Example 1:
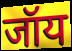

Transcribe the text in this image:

जॉय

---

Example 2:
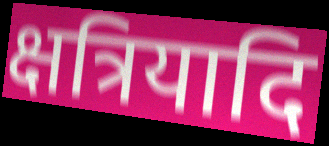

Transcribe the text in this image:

क्षत्रियादि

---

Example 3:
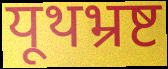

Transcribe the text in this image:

यूथभ्रष्ट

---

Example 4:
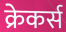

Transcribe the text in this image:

क्रेकर्स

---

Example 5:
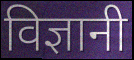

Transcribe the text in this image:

विज्ञानी